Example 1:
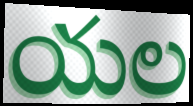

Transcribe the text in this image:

యల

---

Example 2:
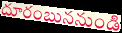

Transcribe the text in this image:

దూరంబుననుండి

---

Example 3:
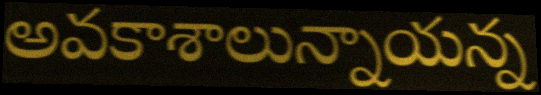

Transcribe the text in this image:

అవకాశాలున్నాయన్న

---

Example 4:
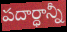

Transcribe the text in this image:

పదార్ధాన్నీ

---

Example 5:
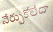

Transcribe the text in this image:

నేర్చుకోలేదా